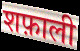
शफ़ाली